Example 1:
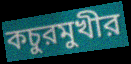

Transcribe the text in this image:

কচুরমুখীর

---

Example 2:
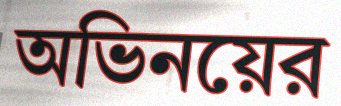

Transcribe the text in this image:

অভিনয়ের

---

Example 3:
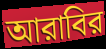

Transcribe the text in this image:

আরাবির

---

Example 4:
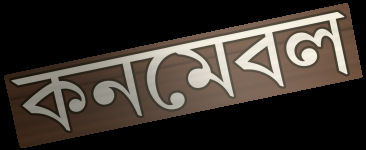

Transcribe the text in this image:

কনমেবল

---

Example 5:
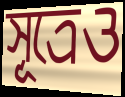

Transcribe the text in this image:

সূত্রেও